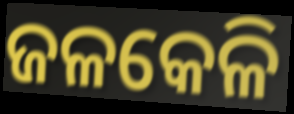
ଜଳକେଳି